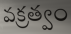
వక్రత్వం